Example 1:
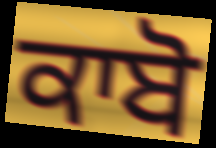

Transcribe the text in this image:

ਕਾਬੋ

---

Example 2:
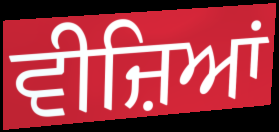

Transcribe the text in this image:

ਵੀਜ਼ਿਆਂ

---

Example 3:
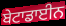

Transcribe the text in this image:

ਬੇਟਾਡਾਈਨ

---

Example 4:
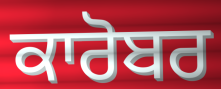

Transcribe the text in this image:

ਕਾਰੋਬਰ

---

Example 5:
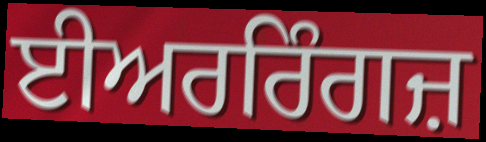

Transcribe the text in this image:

ਈਅਰਰਿੰਗਜ਼